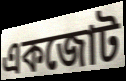
একজোট